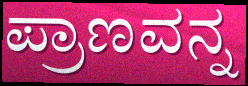
ಪ್ರಾಣವನ್ನ